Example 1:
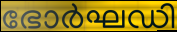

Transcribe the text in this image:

ഭോർഘഡി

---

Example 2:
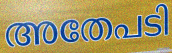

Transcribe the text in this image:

അതേപടി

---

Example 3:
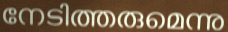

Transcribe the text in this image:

നേടിത്തരുമെന്നു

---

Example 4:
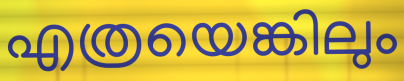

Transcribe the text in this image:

എത്രയെങ്കിലും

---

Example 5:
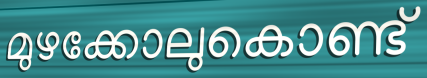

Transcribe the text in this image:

മുഴക്കോലുകൊണ്ട്